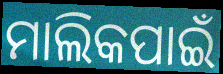
ମାଲିକପାଇଁ